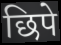
छिपे